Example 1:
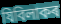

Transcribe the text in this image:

যিবিলাকৰ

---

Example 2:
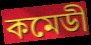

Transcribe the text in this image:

কমেডী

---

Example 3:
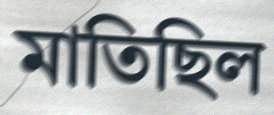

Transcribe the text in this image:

মাতিছিল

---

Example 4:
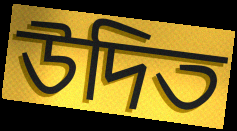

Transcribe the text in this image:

উদিত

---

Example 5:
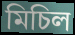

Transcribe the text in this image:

মিচিল